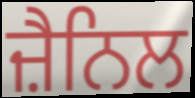
ਜ਼ੈਨਿਲ